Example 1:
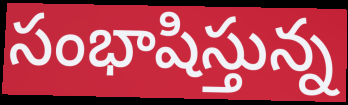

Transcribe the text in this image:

సంభాషిస్తున్న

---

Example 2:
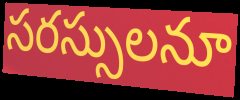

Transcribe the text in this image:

సరస్సులనూ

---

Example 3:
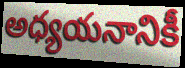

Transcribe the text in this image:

అధ్యయనానికీ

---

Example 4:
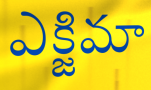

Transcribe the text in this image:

ఎక్జిమా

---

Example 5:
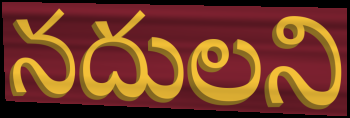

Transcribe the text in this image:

నదులని